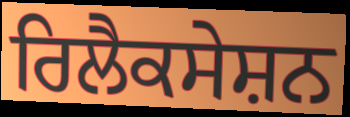
ਰਿਲੈਕਸੇਸ਼ਨ